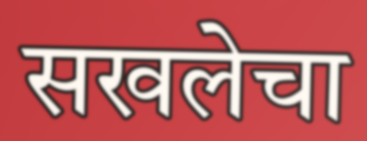
सखलेचा